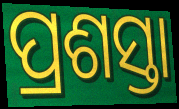
ପ୍ରଶସ୍ତା